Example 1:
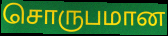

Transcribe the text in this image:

சொருபமான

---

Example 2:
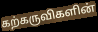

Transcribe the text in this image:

கற்கருவிகளின்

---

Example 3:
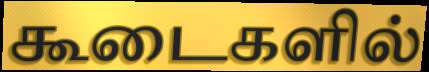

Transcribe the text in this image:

கூடைகளில்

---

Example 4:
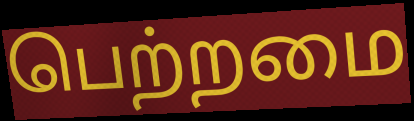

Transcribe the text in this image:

பெற்றமை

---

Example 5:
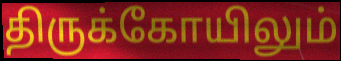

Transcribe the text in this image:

திருக்கோயிலும்